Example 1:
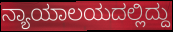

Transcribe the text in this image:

ನ್ಯಾಯಾಲಯದಲ್ಲಿದ್ದು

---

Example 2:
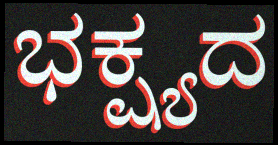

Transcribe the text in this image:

ಭಕ್ಷ್ಯದ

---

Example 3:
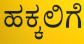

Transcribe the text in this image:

ಹಕ್ಕಲಿಗೆ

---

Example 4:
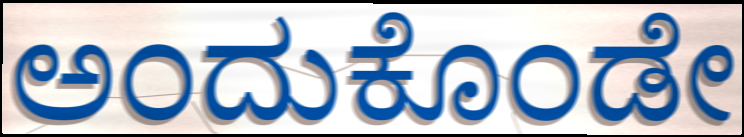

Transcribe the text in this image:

ಅಂದುಕೊಂಡೇ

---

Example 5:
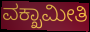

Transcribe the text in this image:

ವಕ್ಖಾಮೀತಿ